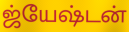
ஜ்யேஷ்டன்